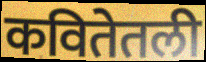
कवितेतली